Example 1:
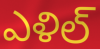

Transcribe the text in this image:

ఎళిల్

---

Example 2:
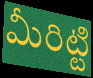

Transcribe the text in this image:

మీరిట్టి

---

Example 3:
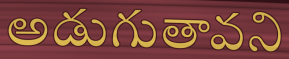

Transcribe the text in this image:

అడుగుతావని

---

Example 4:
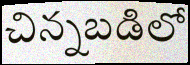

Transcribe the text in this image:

చిన్నబడిలో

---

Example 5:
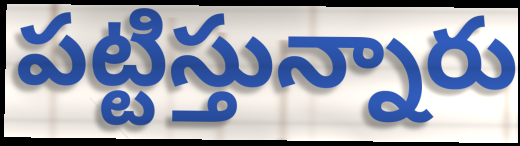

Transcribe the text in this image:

పట్టిస్తున్నారు